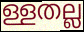
ള്ളതല്ല